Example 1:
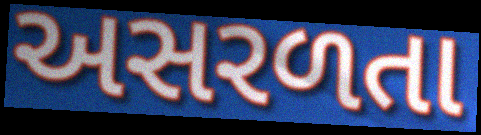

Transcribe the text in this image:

અસરળતા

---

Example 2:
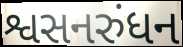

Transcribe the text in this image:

શ્વસનરુંધન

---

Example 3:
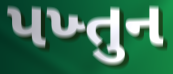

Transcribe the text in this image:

પખ્તુન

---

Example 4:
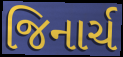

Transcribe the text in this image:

જિનાર્ચ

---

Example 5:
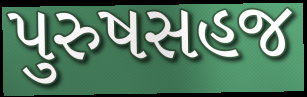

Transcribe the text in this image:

પુરુષસહજ